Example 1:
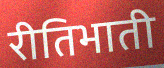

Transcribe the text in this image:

रीतिभाती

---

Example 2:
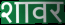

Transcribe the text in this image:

शावर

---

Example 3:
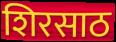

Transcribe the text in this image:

शिरसाठ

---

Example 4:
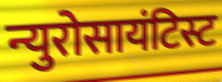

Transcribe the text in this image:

न्युरोसायंटिस्ट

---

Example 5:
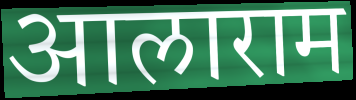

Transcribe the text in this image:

आलाराम